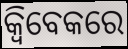
କ୍ୱିବେକରେ